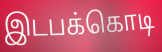
இடபக்கொடி